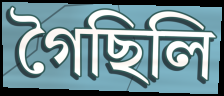
গৈছিলি